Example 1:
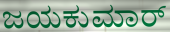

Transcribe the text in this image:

ಜಯಕುಮಾರ್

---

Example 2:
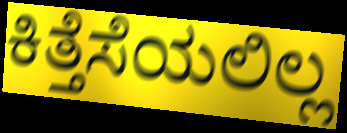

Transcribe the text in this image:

ಕಿತ್ತೆಸೆಯಲಿಲ್ಲ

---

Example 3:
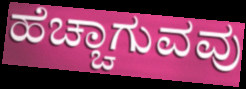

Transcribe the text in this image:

ಹೆಚ್ಚಾಗುವವು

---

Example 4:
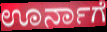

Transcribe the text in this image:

ಊರ್ನಾಗೆ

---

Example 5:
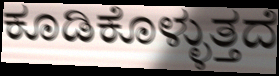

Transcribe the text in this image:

ಕೂಡಿಕೊಳ್ಳುತ್ತದೆ